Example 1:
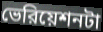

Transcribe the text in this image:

ভেরিয়েশনটা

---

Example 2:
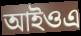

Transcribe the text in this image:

আইওএ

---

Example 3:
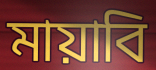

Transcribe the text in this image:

মায়াবি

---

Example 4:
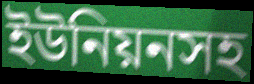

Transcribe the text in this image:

ইউনিয়নসহ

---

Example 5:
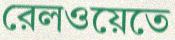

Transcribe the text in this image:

রেলওয়েতে